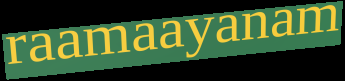
raamaayanam